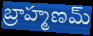
బ్రాహ్మణమ్